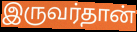
இருவர்தான்